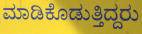
ಮಾಡಿಕೊಡುತ್ತಿದ್ದರು